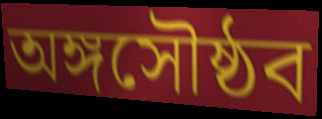
অঙ্গসৌষ্ঠব